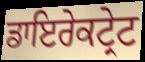
ਡਾਇਰੇਕਟ੍ਰੇਟ